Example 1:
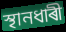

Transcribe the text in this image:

স্থানধাৰী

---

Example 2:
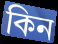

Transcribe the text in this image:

কিন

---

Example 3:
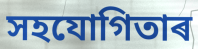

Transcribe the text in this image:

সহযোগিতাৰ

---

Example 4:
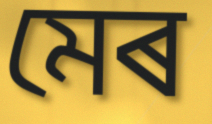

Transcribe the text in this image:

মেৰ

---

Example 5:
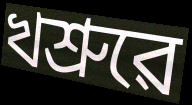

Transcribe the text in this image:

খশ্ৰুৱে